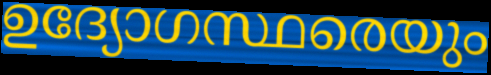
ഉദ്യോഗസ്ഥരെയും